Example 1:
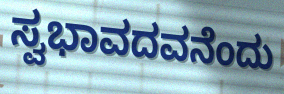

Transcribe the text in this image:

ಸ್ವಭಾವದವನೆಂದು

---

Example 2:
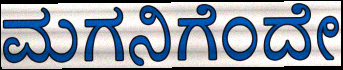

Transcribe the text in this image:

ಮಗನಿಗೆಂದೇ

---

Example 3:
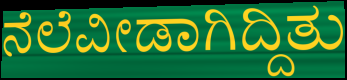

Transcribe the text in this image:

ನೆಲೆವೀಡಾಗಿದ್ದಿತು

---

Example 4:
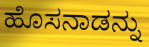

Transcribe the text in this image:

ಹೊಸನಾಡನ್ನು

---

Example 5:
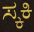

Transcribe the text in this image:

ಸ್ಕಕಿ